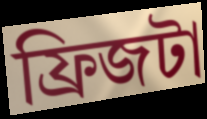
ফ্রিজটা